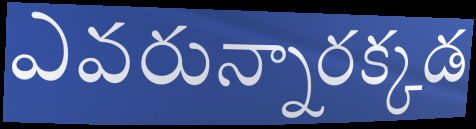
ఎవరున్నారక్కడ